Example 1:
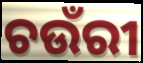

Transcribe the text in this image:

ଚଉଁରୀ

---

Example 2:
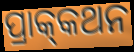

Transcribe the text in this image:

ପ୍ରାକ୍‌କଥନ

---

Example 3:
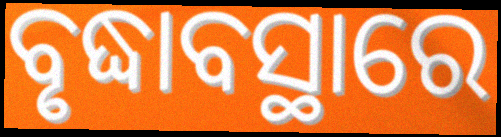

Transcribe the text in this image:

ବୃଦ୍ଧାବସ୍ଥାରେ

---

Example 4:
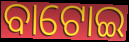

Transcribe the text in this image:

ବାଟୋଇ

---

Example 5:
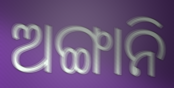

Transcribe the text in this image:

ଅଙ୍ଗାନି